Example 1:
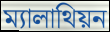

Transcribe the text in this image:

ম্যালাথিয়ন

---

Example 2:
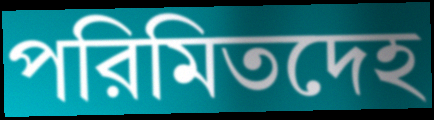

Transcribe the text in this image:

পরিমিতদেহ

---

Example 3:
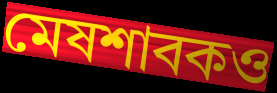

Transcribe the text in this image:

মেষশাবকও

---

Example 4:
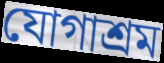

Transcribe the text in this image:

যোগাশ্রম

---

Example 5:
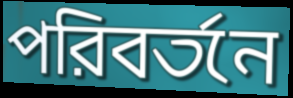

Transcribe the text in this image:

পরিবর্তনে